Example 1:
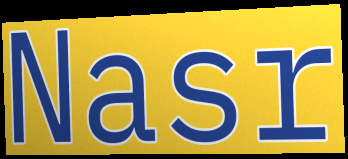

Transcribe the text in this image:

Nasr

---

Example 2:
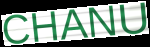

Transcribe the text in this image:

CHANU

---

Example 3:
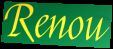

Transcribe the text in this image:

Renou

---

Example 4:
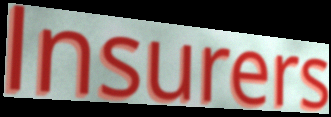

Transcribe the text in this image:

Insurers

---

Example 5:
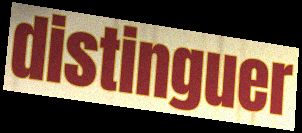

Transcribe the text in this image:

distinguer